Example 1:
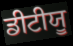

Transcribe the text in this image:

ਡੀਟੀਯੂ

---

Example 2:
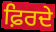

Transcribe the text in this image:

ਫ਼ਿਰਦੇ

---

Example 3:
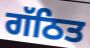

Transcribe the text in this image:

ਗੱਠਿਤ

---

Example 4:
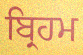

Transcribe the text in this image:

ਬ੍ਰਿਹਮ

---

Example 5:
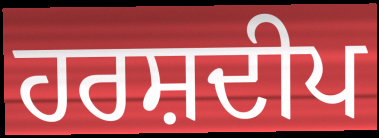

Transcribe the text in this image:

ਹਰਸ਼ਦੀਪ